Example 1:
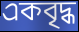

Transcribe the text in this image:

একবৃদ্ধ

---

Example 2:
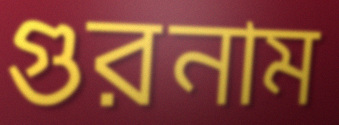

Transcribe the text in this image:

গুরনাম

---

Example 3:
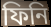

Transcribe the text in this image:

ফিনি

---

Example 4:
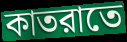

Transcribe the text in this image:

কাতরাতে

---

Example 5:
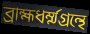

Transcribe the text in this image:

ব্রাহ্মধর্ম্মগ্রন্থে